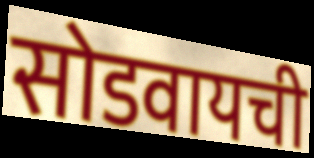
सोडवायची